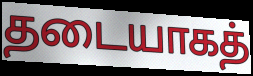
தடையாகத்